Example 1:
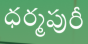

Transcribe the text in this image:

ధర్మపురీ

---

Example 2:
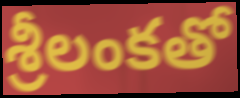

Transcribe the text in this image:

శ్రీలంకతో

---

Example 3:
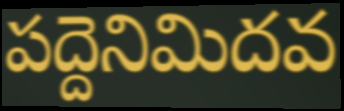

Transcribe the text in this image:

పద్దెనిమిదవ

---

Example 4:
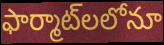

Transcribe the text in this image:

ఫార్మాట్‌లలోనూ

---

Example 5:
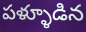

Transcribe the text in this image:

పళ్ళూడిన